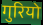
गुरियो